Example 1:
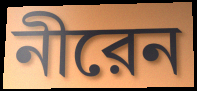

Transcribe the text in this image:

নীরেন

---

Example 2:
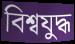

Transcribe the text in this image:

বিশ্বযুদ্ধ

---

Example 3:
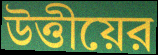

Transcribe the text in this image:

উত্তীয়ের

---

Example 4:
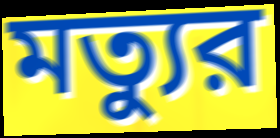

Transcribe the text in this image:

মত্যুর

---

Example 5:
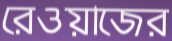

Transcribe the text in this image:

রেওয়াজের